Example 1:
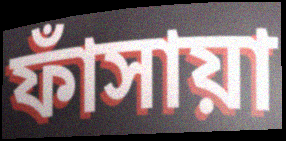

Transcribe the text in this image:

ফাঁসায়া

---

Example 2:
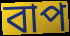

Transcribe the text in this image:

বাপ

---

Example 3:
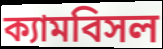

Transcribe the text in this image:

ক্যামবিসল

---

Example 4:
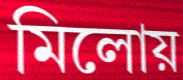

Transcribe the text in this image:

মিলোয়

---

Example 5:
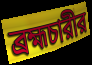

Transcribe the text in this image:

ব্রহ্মচারীর